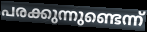
പരക്കുന്നുണ്ടെന്ന്